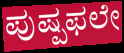
ಪುಷ್ಪಫಲೇ